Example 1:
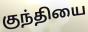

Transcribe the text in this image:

குந்தியை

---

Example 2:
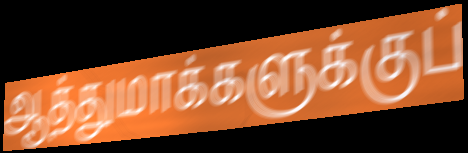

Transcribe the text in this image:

ஆத்துமாக்களுக்குப்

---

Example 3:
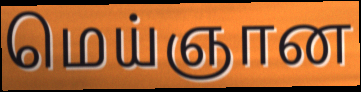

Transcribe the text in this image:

மெய்ஞான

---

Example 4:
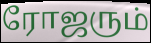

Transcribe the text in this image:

ரோஜரும்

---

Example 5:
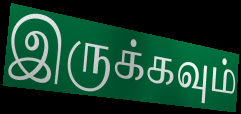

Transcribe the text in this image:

இருக்கவும்